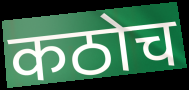
कठोच